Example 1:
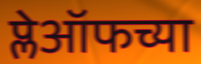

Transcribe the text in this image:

प्लेऑफच्या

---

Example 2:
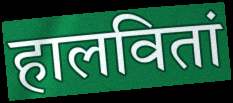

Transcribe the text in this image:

हालवितां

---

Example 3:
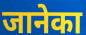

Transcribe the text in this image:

जानेका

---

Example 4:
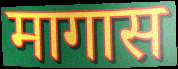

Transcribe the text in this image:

मागास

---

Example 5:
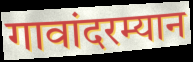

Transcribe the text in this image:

गावांदरम्यान